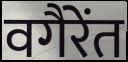
वगैरेंत